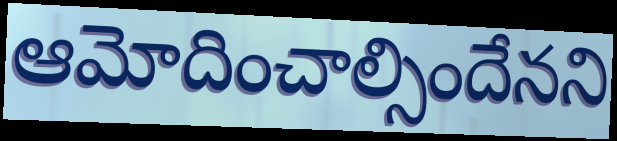
ఆమోదించాల్సిందేనని